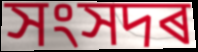
সংসদৰ